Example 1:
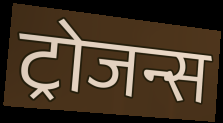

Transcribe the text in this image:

ट्रोजन्स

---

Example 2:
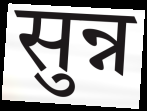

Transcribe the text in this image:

सुन्न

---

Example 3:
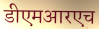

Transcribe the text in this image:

डीएमआरएच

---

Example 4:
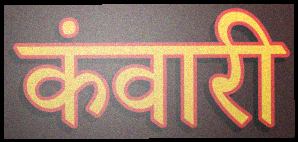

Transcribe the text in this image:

कंवारी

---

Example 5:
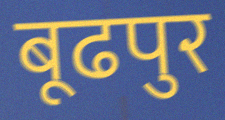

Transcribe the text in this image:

बूढपुर